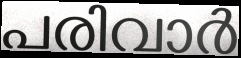
പരിവാർ